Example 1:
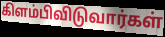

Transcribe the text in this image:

கிளம்பிவிடுவார்கள்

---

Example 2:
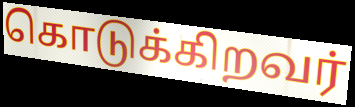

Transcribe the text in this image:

கொடுக்கிறவர்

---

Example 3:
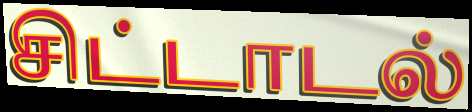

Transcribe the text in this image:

சிட்டாடல்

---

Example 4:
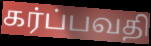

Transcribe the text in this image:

கர்ப்பவதி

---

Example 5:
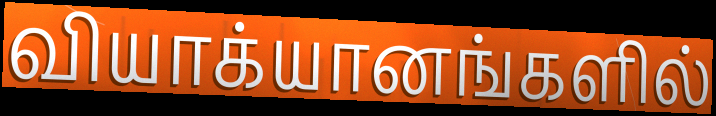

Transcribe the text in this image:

வியாக்யானங்களில்